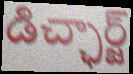
డిచ్ఛార్జ్